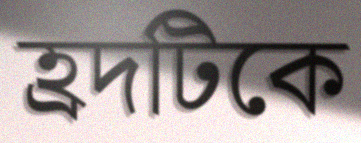
হ্রদটিকে